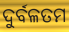
ଦୁର୍ବଳତମ